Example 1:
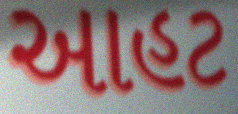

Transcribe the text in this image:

આહટ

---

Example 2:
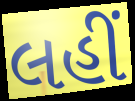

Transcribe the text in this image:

લહીં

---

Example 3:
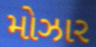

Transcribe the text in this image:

મોઝાર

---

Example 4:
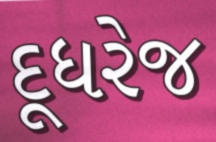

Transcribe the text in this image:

દૂધરેજ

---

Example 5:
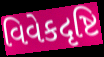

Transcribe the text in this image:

વિવેકદૃષ્ટિ